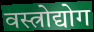
वस्त्रोद्योग